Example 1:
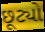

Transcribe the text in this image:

છૂટ્યો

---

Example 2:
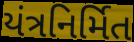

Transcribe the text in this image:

યંત્રનિર્મિત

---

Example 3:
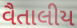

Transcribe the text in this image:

વૈતાલીય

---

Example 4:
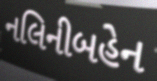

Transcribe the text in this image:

નલિનીબહેન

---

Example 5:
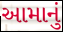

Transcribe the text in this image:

આમાનું